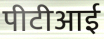
पीटीआई